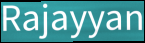
Rajayyan